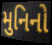
મુનિનો